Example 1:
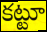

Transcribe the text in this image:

కట్టూ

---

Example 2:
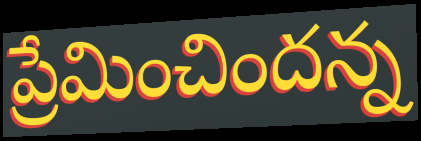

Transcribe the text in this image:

ప్రేమించిందన్న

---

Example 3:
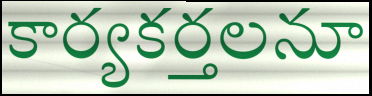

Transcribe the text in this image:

కార్యకర్తలనూ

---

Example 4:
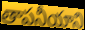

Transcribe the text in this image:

తాపనీయాని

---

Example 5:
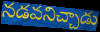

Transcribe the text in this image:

నడవనిచ్చాడు